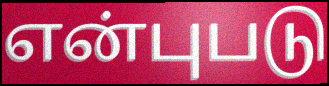
என்புபடு